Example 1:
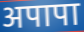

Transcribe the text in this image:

अपापा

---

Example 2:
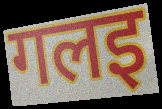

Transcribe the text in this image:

गलइ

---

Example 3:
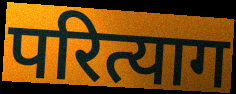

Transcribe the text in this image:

परित्याग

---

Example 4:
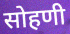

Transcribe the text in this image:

सोहणी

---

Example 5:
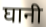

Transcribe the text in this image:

घानी